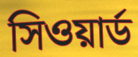
সিওয়ার্ড